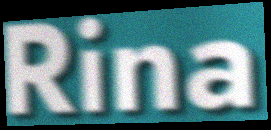
Rina